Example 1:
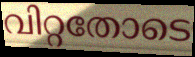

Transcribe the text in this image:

വിറ്റതോടെ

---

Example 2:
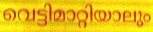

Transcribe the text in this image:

വെട്ടിമാറ്റിയാലും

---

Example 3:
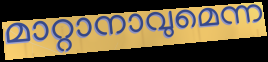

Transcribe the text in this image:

മാറ്റാനാവുമെന്ന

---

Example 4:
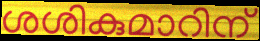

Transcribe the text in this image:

ശശികുമാറിന്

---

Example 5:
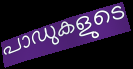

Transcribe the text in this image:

പാഡുകളുടെ